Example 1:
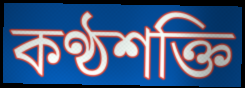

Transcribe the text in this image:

কণ্ঠশক্তি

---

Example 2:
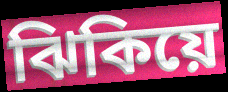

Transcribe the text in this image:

ঝিকিয়ে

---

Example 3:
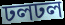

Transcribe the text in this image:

ঢলঢল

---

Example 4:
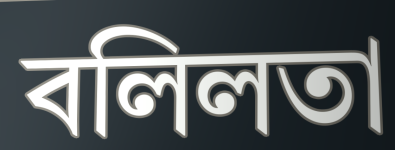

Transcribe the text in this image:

বলিলতা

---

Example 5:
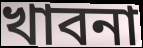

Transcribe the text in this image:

খাবনা